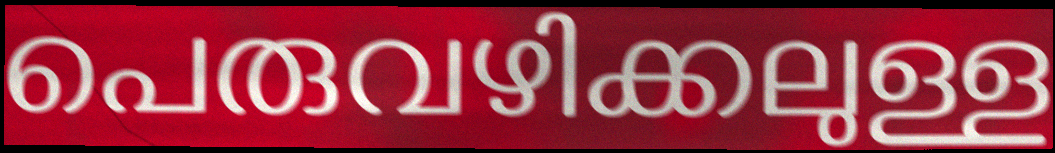
പെരുവഴിക്കലുള്ള